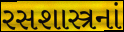
રસશાસ્ત્રનાં